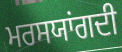
ਮਰਸਯਾਂਗਦੀ